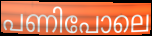
പണിപോലെ